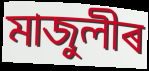
মাজুলীৰ